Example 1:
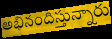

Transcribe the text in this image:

అభినందిస్తున్నారు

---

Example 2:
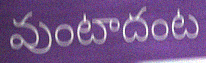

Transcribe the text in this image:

వుంటాదంట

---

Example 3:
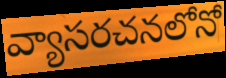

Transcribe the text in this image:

వ్యాసరచనలోనో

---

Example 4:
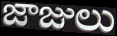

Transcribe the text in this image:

జాజులు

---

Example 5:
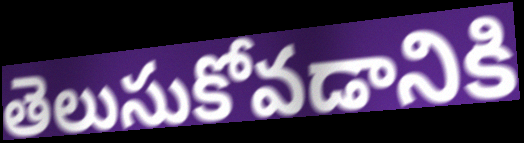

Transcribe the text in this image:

తెలుసుకోవడానికి